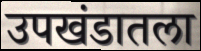
उपखंडातला